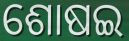
ଶୋଷଇ